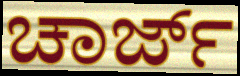
ಚಾರ್ಜ್